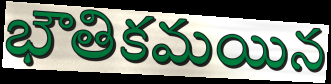
భౌతికమయిన